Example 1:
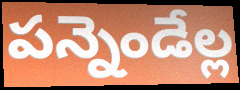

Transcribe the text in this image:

పన్నెండేల్ల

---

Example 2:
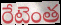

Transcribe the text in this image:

రేటెంత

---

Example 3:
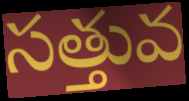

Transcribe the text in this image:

సత్తువ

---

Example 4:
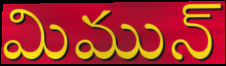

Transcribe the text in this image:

మిమున్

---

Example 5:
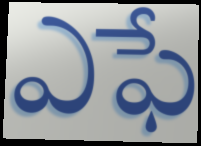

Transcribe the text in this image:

ఎఫే